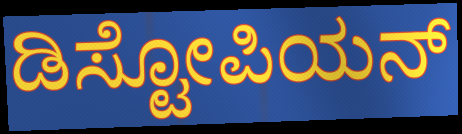
ಡಿಸ್ಟೋಪಿಯನ್